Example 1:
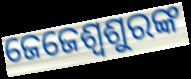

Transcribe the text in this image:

ଜେଜେଶ୍ୱଶୁରଙ୍କ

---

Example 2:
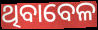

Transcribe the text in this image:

ଥିବାବେଳ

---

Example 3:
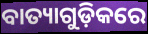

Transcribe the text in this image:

ବାତ୍ୟାଗୁଡ଼ିକରେ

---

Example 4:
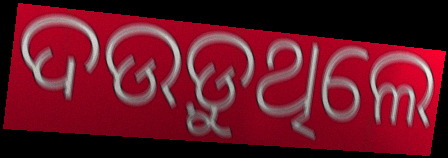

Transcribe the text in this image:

ଦଉଡ଼ୁଥିଲେ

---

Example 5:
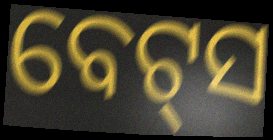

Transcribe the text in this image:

ବେଟ୍‍ସ